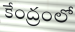
కేంద్రంలో